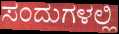
ಸಂದುಗಳಲ್ಲಿ